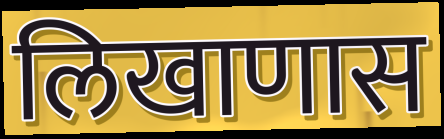
लिखाणास